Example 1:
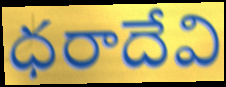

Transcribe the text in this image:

ధరాదేవి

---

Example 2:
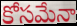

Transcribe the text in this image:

కోసమేనా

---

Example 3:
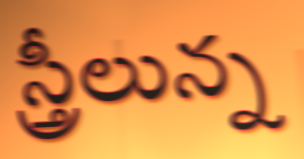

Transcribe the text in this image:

స్త్రీలున్న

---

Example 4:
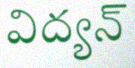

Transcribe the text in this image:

విద్యన్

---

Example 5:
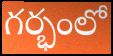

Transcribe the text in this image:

గర్భంలో